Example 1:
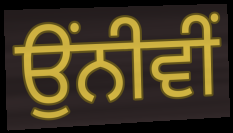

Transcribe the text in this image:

ਉੰਨੀਵੀਂ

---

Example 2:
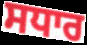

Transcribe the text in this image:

ਸਧਾਰ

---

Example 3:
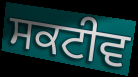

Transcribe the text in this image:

ਸਕਟੀਵ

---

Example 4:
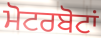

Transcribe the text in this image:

ਮੋਟਰਬੋਟਾਂ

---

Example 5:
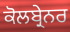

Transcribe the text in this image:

ਕੋਲਬ੍ਰੇਨਰ